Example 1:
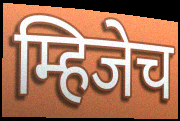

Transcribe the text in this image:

म्हिजेच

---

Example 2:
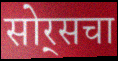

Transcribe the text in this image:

सोर्सचा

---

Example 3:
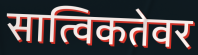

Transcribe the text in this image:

सात्विकतेवर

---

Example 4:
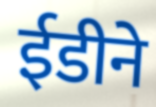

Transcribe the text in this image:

ईडीने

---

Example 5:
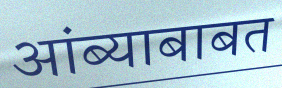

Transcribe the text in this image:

आंब्याबाबत